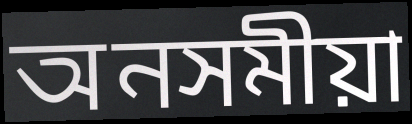
অনসমীয়া